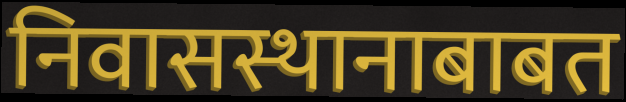
निवासस्थानाबाबत